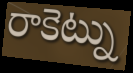
రాకెట్ను